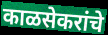
काळसेकरांचे